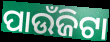
ପାଉଁଜିଟା